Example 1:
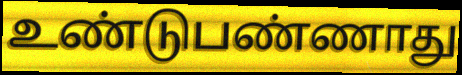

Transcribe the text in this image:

உண்டுபண்ணாது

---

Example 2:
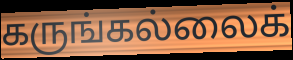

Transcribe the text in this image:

கருங்கல்லைக்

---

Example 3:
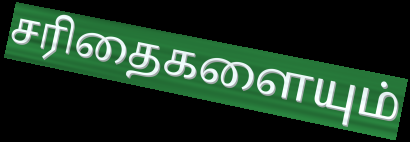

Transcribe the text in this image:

சரிதைகளையும்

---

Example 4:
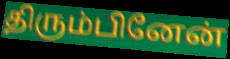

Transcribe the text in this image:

திரும்பினேன்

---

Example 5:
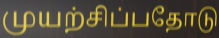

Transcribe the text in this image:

முயற்சிப்பதோடு